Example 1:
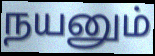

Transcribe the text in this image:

நயனும்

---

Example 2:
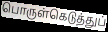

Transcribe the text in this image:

பொருள்கெடுத்துப்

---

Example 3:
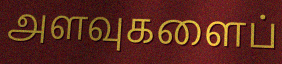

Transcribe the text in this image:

அளவுகளைப்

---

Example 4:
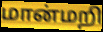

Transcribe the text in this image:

மான்மறி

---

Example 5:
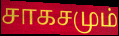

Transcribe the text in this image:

சாகசமும்